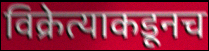
विक्रेत्याकडूनच